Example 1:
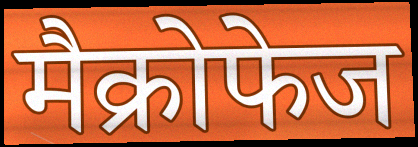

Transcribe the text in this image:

मैक्रोफेज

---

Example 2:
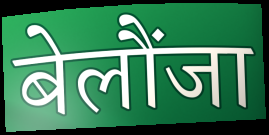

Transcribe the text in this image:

बेलौंजा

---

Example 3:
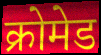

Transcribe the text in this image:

क्रोमेड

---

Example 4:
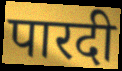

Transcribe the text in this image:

पारदी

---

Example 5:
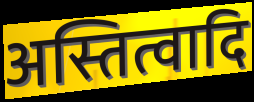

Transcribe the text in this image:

अस्तित्वादि